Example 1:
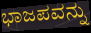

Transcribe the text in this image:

ಭಾಜಪವನ್ನು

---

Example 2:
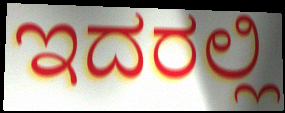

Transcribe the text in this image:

ಇದರಲ್ಲಿ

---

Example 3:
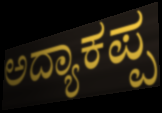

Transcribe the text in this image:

ಅದ್ಯಾಕಪ್ಪ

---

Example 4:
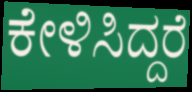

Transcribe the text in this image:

ಕೇಳಿಸಿದ್ದರೆ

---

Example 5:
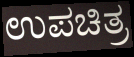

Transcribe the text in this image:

ಉಪಚಿತ್ರ